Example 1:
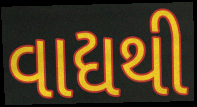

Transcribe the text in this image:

વાદ્યથી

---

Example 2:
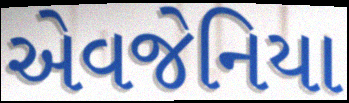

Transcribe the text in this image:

એવજેનિયા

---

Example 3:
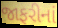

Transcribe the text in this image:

જાફરીનાં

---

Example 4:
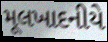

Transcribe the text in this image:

મૂલખાદનીયે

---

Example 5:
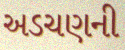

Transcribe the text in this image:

અડચણની